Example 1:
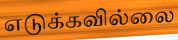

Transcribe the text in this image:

எடுக்கவில்லை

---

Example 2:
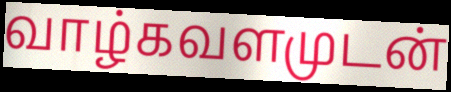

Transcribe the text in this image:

வாழ்கவளமுடன்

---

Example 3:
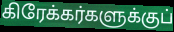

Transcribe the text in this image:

கிரேக்கர்களுக்குப்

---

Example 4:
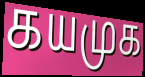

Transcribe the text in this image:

கயமுக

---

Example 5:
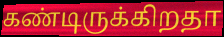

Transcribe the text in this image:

கண்டிருக்கிறதா